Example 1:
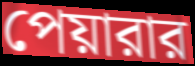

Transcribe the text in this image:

পেয়ারার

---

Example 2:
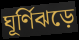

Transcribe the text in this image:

ঘূর্ণিঝড়ে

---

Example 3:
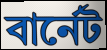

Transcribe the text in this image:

বার্নেট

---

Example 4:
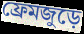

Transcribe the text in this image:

ফ্রেমজুড়ে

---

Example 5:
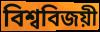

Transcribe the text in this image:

বিশ্ববিজয়ী